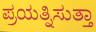
ಪ್ರಯತ್ನಿಸುತ್ತಾ